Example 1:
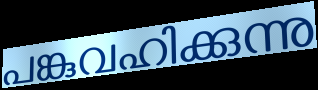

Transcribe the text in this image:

പങ്കുവഹിക്കുന്നു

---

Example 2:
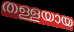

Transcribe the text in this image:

തള്ളയായ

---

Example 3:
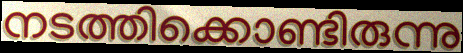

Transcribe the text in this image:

നടത്തിക്കൊണ്ടിരുന്നു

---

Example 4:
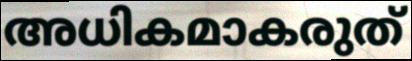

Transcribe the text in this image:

അധികമാകരുത്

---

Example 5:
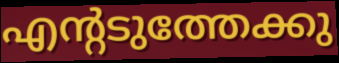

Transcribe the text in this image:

എന്റടുത്തേക്കു